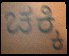
ಚಕ್ಕಿ